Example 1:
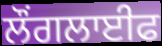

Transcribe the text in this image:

ਲੌਂਗਲਾਈਫ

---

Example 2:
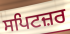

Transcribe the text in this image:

ਸਪਿਟਜ਼ਰ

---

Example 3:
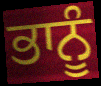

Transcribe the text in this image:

ਭਾਨੂੰ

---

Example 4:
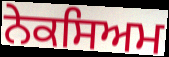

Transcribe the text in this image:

ਨੇਕਸਿਅਮ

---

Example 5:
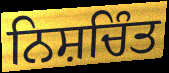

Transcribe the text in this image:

ਨਿਸ਼ਚਿੰਤ